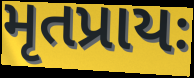
મૃતપ્રાયઃ